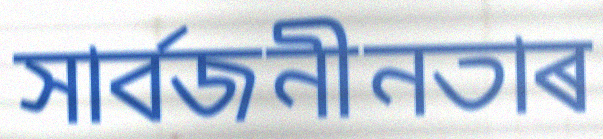
সাৰ্বজনীনতাৰ